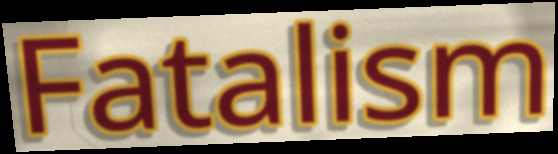
Fatalism